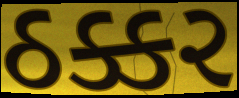
ઠક્કર